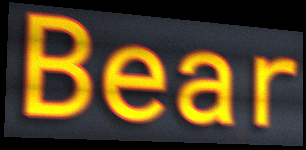
Bear